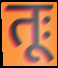
तूः